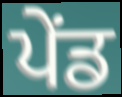
ਪੇਂਡ